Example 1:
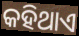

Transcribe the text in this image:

କହିଥାଏ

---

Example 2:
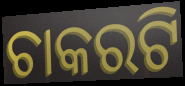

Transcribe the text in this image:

ଚାକରଟି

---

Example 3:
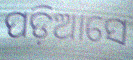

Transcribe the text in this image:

ପଡ଼ିଆସେ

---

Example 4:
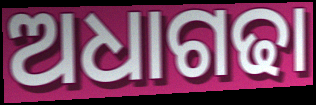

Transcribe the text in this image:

ଅଧାଗଢା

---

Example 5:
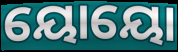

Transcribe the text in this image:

ୟୋୟୋ